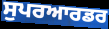
ਸੁਪਰਆਰਡਰ